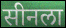
सीनला